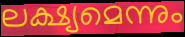
ലക്ഷ്യമെന്നും